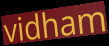
vidham